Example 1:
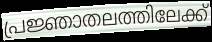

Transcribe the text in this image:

പ്രജ്ഞാതലത്തിലേക്ക്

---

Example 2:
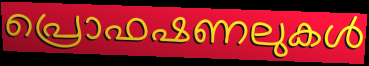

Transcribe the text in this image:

പ്രൊഫഷണലുകൾ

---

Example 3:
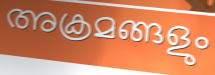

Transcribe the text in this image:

അക്രമങ്ങളും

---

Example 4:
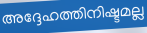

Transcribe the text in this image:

അദ്ദേഹത്തിനിഷ്ടമല്ല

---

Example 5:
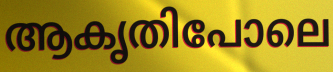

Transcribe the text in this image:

ആകൃതിപോലെ